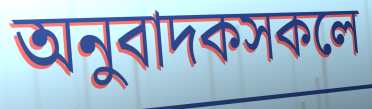
অনুবাদকসকলে